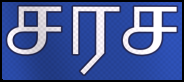
சரச